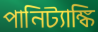
পানিট্যাঙ্কি